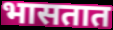
भासतात